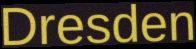
Dresden